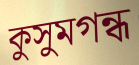
কুসুমগন্ধ